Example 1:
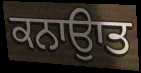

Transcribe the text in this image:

ਕਨਾਉਾਤ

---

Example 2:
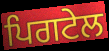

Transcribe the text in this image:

ਪਿਗਟੇਲ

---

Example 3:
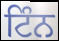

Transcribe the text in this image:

ਟਿੰਨ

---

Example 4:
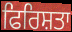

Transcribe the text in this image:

ਫਿਰਿਸ਼ਤਾ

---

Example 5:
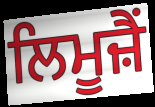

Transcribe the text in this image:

ਲਿਮੂਜ਼ੈਂ